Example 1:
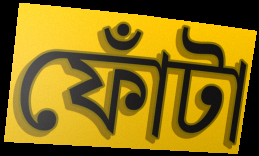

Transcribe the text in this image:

ফোঁটা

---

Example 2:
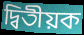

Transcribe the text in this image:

দ্বিতীয়ক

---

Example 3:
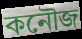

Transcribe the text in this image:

কনৌজ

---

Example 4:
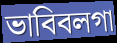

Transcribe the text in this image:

ভাবিবলগা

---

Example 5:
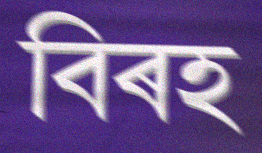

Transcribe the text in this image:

বিৰহ